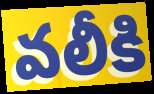
వలీకి